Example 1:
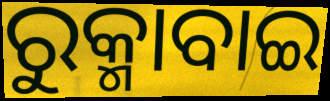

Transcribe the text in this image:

ରୁକ୍ମାବାଇ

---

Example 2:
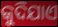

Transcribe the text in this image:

କୁଦିଯାଏ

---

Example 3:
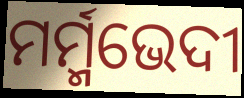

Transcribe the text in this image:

ମର୍ମ୍ମଭେଦୀ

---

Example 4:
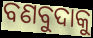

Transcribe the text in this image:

ବଣବୁଦାକୁ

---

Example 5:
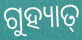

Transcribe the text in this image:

ଗୁହ୍ୟାତ୍